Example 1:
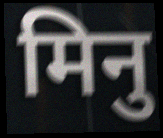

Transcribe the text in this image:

मिनु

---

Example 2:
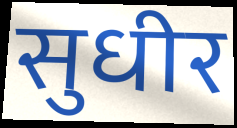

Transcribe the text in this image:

सुधीर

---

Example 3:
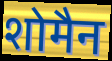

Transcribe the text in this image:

शोमैन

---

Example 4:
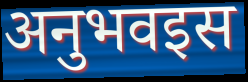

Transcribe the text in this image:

अनुभवइस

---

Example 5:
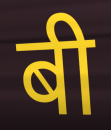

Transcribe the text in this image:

बी